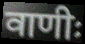
वाणीः